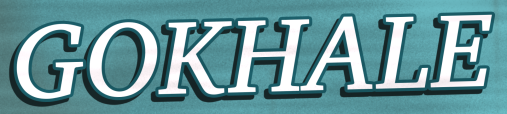
GOKHALE